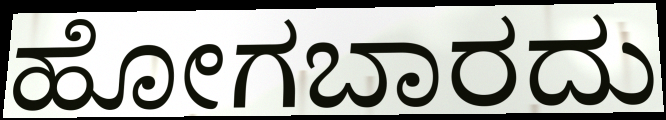
ಹೋಗಬಾರದು